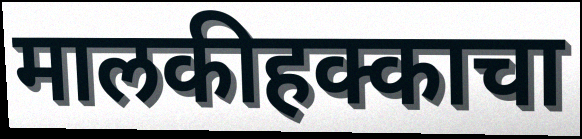
मालकीहक्काचा